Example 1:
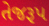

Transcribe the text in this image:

તેજરૂપ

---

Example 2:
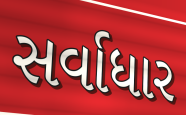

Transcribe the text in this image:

સર્વાધાર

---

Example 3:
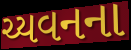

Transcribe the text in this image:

ચ્યવનના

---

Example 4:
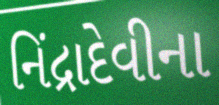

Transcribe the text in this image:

નિંદ્રાદેવીના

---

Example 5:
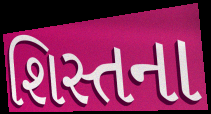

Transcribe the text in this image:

શિસ્તના